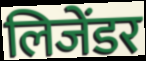
लिजेंडर